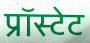
प्रॉस्टेट